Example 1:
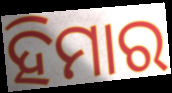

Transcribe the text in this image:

ହିମାର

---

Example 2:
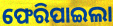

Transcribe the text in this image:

ଫେରିପାଇଲା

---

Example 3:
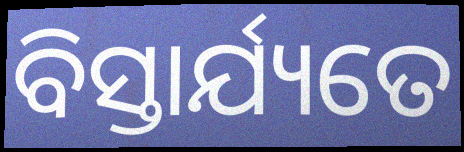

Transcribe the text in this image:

ବିସ୍ତାର୍ଯ୍ୟତେ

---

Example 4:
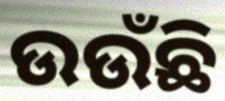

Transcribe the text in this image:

ଉଉଁଛି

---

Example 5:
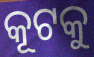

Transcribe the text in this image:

କୂଟକୁ